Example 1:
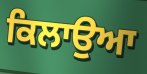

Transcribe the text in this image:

ਕਿਲਾਉਆ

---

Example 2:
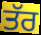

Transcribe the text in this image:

ਤੱਰ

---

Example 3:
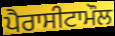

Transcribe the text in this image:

ਪੈਰਾਸੀਟਾਮੌਲ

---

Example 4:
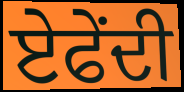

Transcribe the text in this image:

ਏਫੇਂਦੀ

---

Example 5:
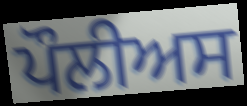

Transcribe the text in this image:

ਪੌਲੀਅਸ